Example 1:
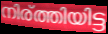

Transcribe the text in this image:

നിര്ത്തിയിട്ട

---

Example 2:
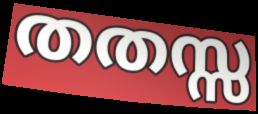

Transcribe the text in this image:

തതസ്സ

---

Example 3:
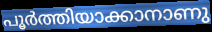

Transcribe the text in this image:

പൂർത്തിയാക്കാനാണു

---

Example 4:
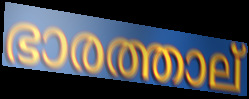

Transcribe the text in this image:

ഭാരത്താല്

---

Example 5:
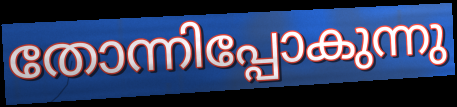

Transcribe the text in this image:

തോന്നിപ്പോകുന്നു